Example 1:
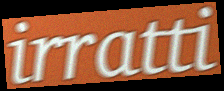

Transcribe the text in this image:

irratti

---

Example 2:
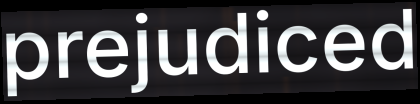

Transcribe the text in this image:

prejudiced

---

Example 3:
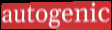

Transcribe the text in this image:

autogenic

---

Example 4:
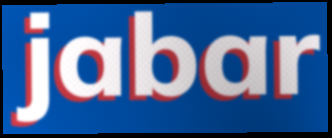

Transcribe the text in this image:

jabar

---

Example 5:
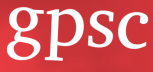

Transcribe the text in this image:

gpsc